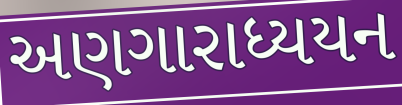
અણગારાધ્યયન